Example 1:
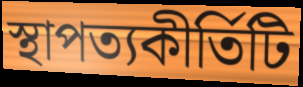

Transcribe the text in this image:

স্থাপত্যকীর্তিটি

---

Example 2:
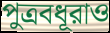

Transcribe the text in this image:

পুত্রবধূরাও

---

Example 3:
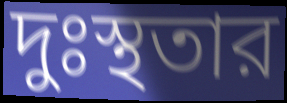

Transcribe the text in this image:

দুঃস্থতার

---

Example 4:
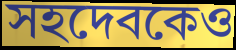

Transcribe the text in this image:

সহদেবকেও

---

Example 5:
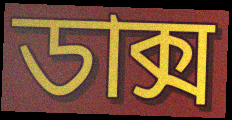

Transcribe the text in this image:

ডাক্স